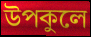
উপকুলে